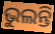
ଭୁଲନ୍ତି